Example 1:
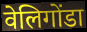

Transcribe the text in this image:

वेलिगोंडा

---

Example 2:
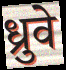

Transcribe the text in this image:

ध्रुवे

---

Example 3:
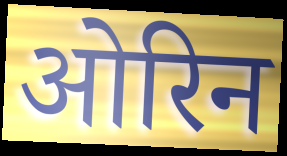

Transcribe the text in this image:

ओरिन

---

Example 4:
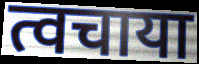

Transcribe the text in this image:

त्वचाया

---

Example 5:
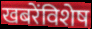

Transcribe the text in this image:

खबरेंविशेष